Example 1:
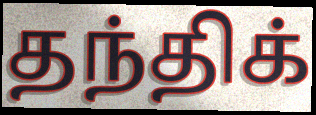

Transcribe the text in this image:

தந்திக்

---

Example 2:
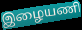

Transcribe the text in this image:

இழையணி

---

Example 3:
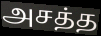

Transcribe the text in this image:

அசத்த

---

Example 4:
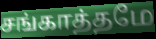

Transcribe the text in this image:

சங்காத்தமே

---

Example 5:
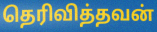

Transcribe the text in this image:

தெரிவித்தவன்